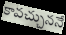
కావచ్చుననే